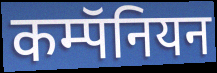
कम्पॅनियन